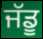
ਜੱਡੂ